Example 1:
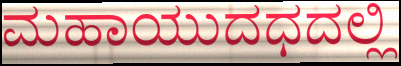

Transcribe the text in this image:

ಮಹಾಯುದಧದಲ್ಲಿ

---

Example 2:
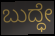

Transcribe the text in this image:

ಬುದ್ಧೇ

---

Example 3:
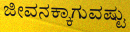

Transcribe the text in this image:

ಜೀವನಕ್ಕಾಗುವಷ್ಟು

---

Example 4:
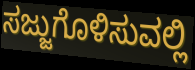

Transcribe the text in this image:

ಸಜ್ಜುಗೊಳಿಸುವಲ್ಲಿ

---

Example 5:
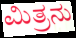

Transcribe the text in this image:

ಮಿತ್ರನು